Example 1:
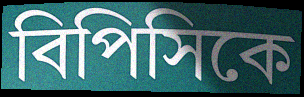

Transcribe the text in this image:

বিপিসিকে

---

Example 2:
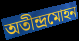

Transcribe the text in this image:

অতীন্দ্রমোহন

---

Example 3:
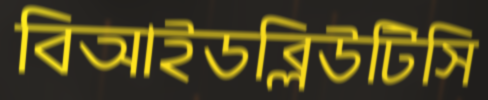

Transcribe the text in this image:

বিআইডব্লিউটিসি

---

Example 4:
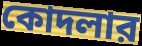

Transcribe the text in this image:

কোদলার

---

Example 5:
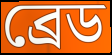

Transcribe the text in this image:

ব্রেড